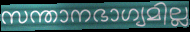
സന്താനഭാഗ്യമില്ല